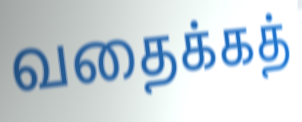
வதைக்கத்